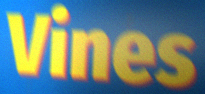
Vines